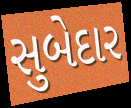
સુબેદાર